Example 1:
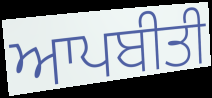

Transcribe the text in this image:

ਆਪਬੀਤੀ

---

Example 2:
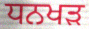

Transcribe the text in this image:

ਧਨਖੜ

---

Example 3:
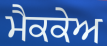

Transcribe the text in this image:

ਮੈਕਕੇਅ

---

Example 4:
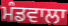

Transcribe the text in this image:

ਮੰਡਵਾਲਾ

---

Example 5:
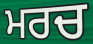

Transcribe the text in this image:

ਮਰਚ